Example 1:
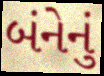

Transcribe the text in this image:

બંનેનું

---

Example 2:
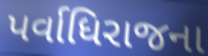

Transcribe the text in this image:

પર્વાધિરાજના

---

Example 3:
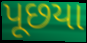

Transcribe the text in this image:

પૂછયા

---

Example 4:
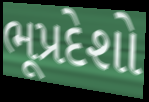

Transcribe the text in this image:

ભૂપ્રદેશો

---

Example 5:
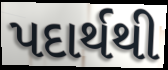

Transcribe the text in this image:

પદાર્થથી